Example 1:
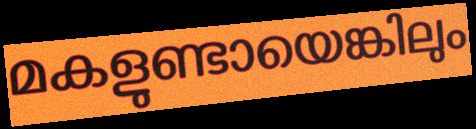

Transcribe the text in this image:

മകളുണ്ടായെങ്കിലും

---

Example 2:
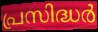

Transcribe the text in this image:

പ്രസിദ്ധർ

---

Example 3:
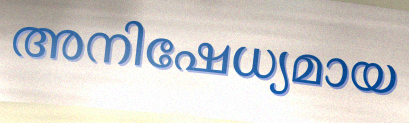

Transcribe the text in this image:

അനിഷേധ്യമായ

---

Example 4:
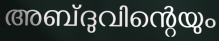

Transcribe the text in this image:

അബ്ദുവിന്റെയും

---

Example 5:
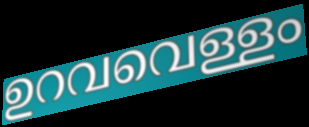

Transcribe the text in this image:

ഉറവവെള്ളം